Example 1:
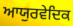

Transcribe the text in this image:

ਆਯੁਰਵੇਦਿਕ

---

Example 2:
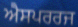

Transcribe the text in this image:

ਐਸਪਰਰਜ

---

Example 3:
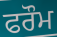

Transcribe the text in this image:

ਫਰੌਮ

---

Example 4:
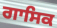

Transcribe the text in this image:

ਗਾਸਿਕ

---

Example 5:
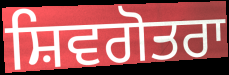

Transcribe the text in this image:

ਸ਼ਿਵਗੋਤਰਾ